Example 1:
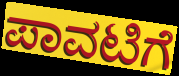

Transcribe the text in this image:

ಪಾವಟಿಗೆ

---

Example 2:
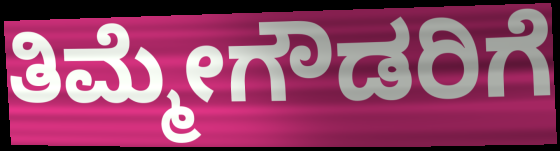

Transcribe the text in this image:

ತಿಮ್ಮೇಗೌಡರಿಗೆ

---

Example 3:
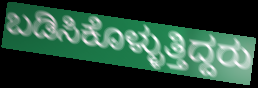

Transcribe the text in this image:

ಬಡಿಸಿಕೊಳ್ಳುತ್ತಿದ್ದರು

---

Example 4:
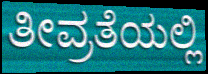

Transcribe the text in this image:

ತೀವ್ರತೆಯಲ್ಲಿ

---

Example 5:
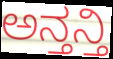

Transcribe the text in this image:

ಅನ್ತನ್ತಿ